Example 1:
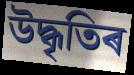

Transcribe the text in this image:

উদ্ধৃতিৰ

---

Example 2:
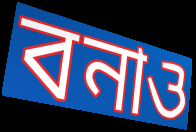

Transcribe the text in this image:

বনাও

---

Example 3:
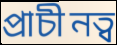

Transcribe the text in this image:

প্ৰাচীনত্ব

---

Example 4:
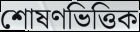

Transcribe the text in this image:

শোষণভিত্তিক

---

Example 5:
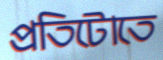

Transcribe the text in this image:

প্ৰতিটোতে